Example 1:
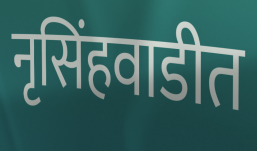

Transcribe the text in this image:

नृसिंहवाडीत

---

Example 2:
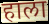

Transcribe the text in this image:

हाला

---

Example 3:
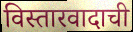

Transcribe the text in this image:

विस्तारवादाची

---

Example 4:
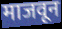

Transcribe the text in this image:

माजवून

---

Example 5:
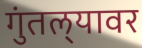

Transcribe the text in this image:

गुंतल्यावर